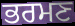
ਭਰਮਣ